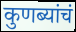
कुणब्यांचं